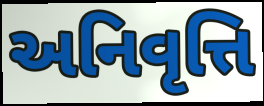
અનિવૃત્તિ